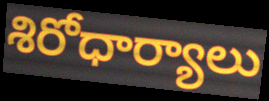
శిరోధార్యాలు